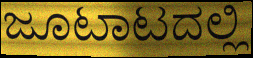
ಜೂಟಾಟದಲ್ಲಿ